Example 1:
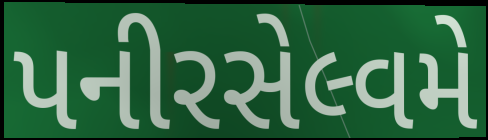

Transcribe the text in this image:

પનીરસેલ્વમે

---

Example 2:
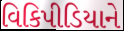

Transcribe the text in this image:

વિકિપીડિયાને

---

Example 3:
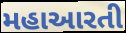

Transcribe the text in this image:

મહાઆરતી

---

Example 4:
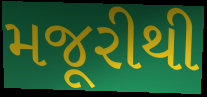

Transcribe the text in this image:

મજૂરીથી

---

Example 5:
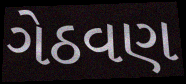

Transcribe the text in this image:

ગેઠવણ